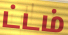
ட்டம்